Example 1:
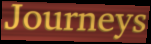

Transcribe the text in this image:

Journeys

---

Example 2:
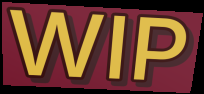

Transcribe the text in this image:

WIP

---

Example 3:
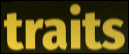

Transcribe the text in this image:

traits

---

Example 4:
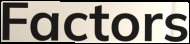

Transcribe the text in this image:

Factors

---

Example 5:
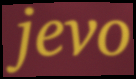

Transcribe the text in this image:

jevo